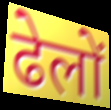
ढेलों